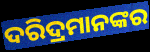
ଦରିଦ୍ରମାନଙ୍କର